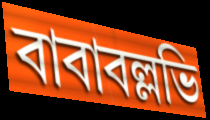
বাবাবল্লভি